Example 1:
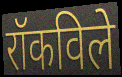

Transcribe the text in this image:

रॉकविले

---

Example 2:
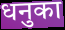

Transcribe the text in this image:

धनुका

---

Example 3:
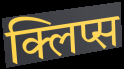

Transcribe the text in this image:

क्लिप्स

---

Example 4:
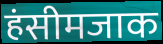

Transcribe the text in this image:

हंसीमजाक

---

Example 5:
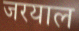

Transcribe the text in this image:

जरयाल